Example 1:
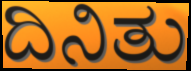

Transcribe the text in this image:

ದಿನಿತು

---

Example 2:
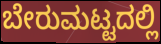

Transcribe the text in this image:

ಬೇರುಮಟ್ಟದಲ್ಲಿ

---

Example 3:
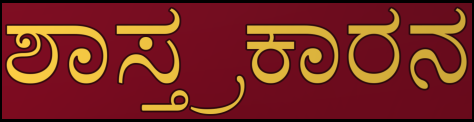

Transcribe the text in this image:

ಶಾಸ್ತ್ರಕಾರನ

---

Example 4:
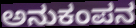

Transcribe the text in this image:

ಅನುಕಂಪನ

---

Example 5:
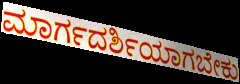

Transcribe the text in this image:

ಮಾರ್ಗದರ್ಶಿಯಾಗಬೇಕು